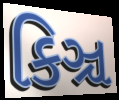
કિઞ્ચ